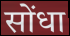
सोंधा